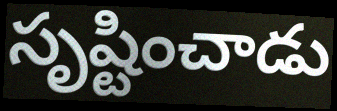
సృష్టించాడు